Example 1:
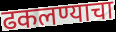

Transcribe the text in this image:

ढकलण्याचा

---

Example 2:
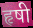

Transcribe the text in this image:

हृषी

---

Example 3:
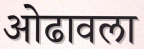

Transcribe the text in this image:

ओढावला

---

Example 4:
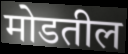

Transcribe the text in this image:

मोडतील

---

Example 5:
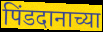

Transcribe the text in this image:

पिंडदानाच्या